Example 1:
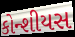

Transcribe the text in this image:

કોન્શીયસ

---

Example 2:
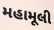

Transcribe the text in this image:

મહામૂલી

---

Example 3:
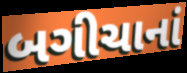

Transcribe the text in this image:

બગીચાનાં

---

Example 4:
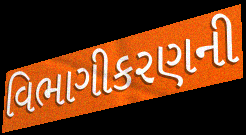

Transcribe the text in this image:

વિભાગીકરણની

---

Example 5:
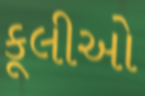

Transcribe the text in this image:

કૂલીઓ